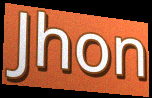
Jhon